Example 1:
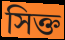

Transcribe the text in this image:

সিক্ত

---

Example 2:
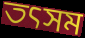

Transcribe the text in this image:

তৎসম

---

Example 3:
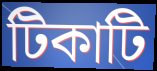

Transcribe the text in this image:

টিকাটি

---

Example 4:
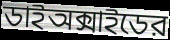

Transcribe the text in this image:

ডাইঅক্সাইডের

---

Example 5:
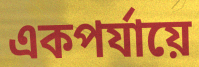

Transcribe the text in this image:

একপর্যায়ে